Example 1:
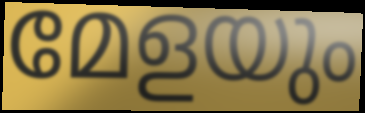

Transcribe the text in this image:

മേളയും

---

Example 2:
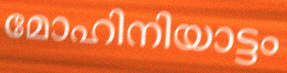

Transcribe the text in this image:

മോഹിനിയാട്ടം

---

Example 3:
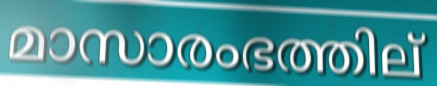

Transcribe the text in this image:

മാസാരംഭത്തില്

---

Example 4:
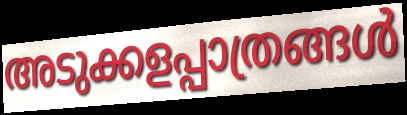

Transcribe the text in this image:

അടുക്കളപ്പാത്രങ്ങൾ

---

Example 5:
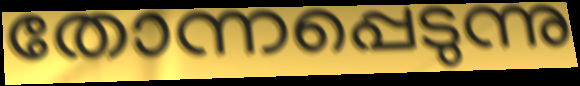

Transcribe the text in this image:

തോന്നപ്പെടുന്നു